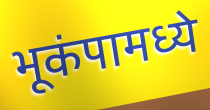
भूकंपामध्ये